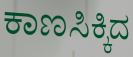
ಕಾಣಸಿಕ್ಕಿದ